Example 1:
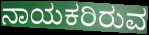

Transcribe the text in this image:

ನಾಯಕರಿರುವ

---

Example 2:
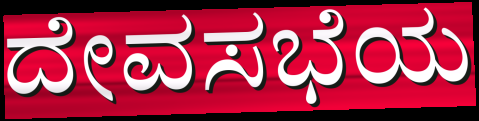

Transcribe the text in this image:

ದೇವಸಭೆಯ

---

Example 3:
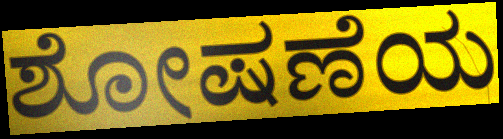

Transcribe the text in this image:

ಶೋಷಣೆಯ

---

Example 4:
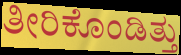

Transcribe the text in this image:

ತೀರಿಕೊಂಡಿತ್ತು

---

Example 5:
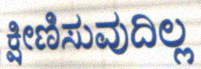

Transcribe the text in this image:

ಕ್ಷೀಣಿಸುವುದಿಲ್ಲ